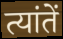
त्यांतें